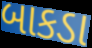
બાકડા